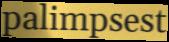
palimpsest